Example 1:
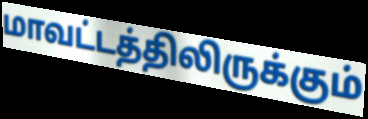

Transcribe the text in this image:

மாவட்டத்திலிருக்கும்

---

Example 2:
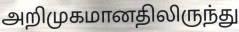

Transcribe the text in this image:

அறிமுகமானதிலிருந்து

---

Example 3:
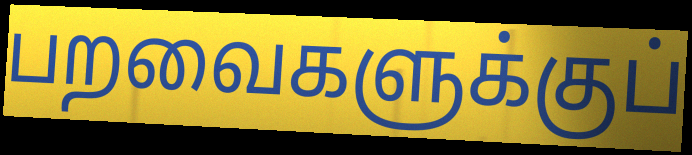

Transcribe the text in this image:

பறவைகளுக்குப்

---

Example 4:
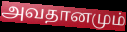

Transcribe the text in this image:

அவதானமும்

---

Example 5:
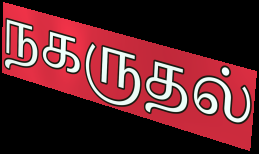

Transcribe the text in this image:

நகருதல்